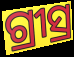
ଗ୍ରୀସ୍ର